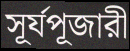
সূর্যপূজারী